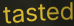
tasted